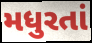
મધુરતાં